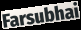
Farsubhai